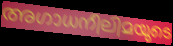
അഗാധനീലിമയുടെ